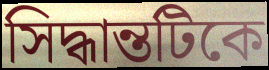
সিদ্ধান্তটিকে